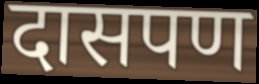
दासपण